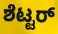
ಶೆಟ್ಟರ್